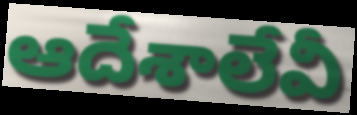
ఆదేశాలేవీ